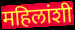
महिलांशी